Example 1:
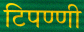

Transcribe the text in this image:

टिपण्णी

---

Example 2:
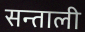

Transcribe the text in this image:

सन्ताली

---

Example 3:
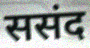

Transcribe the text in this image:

ससंद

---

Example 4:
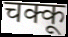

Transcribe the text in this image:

चक्कू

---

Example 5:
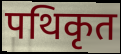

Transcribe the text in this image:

पथिकृत